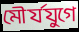
মৌর্যযুগে